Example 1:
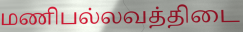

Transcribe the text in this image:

மணிபல்லவத்திடை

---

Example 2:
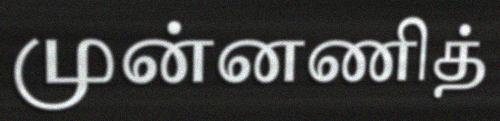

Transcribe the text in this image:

முன்னணித்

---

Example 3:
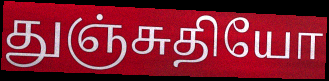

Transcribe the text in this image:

துஞ்சுதியோ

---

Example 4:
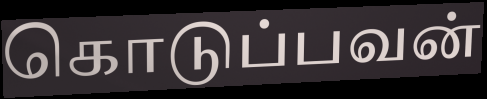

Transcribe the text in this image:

கொடுப்பவன்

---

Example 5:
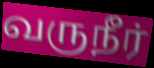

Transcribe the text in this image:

வருநீர்